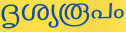
ദൃശ്യരൂപം